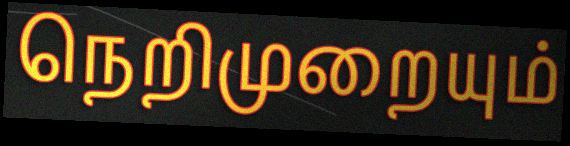
நெறிமுறையும்